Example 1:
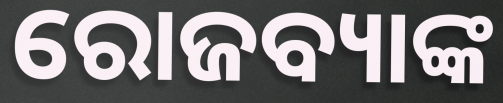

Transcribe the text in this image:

ରୋଜବ୍ୟାଙ୍କ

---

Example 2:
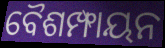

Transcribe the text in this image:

ବୈଶମ୍ଫାୟନ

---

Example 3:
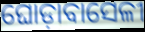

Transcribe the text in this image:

ଘୋଡ଼ାବାସେଳୀ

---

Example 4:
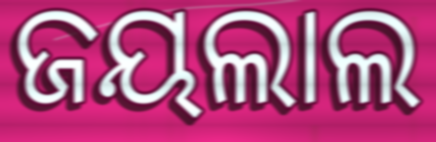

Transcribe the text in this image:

ଜୟଲାଲ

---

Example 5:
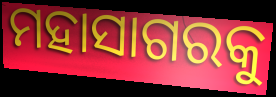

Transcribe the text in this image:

ମହାସାଗରକୁ